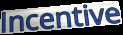
Incentive